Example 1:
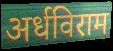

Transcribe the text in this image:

अर्धविराम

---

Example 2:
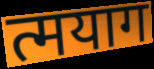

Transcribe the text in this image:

त्मयाग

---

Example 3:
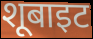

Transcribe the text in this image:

शूबाइट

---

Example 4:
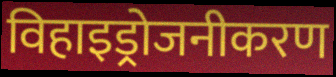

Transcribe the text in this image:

विहाइड्रोजनीकरण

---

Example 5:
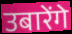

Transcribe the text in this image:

उबारेंगे